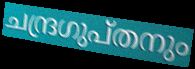
ചന്ദ്രഗുപ്തനും